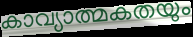
കാവ്യാത്മകതയും